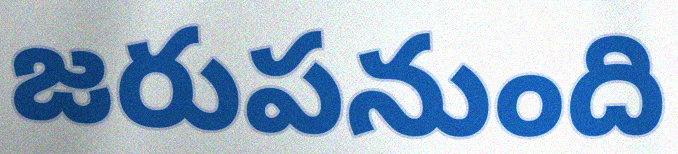
జరుపనుంది